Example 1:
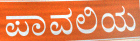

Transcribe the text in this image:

ಪಾವಲಿಯ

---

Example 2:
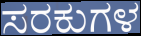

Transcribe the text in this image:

ಸರಕುಗಳ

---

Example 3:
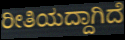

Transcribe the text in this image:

ರೀತಿಯದ್ದಾಗಿದೆ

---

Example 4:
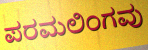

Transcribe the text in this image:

ಪರಮಲಿಂಗವು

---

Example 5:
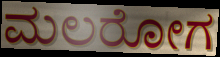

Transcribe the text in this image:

ಮಲರೋಗ